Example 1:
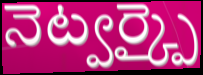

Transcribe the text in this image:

నెట్వర్క్పై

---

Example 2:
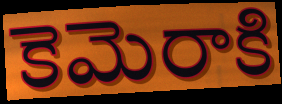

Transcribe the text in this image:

కెమెరాకి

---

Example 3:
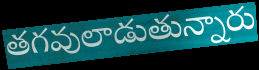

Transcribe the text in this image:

తగవులాడుతున్నారు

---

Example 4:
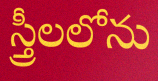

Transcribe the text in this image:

స్త్రీలలోను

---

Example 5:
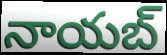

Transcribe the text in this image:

నాయబ్